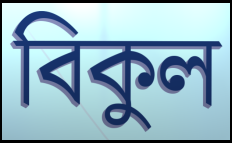
বিকুল